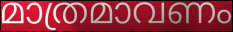
മാത്രമാവണം